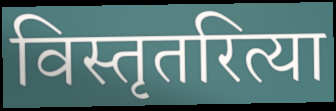
विस्तृतरित्या